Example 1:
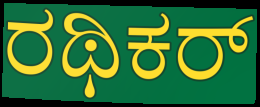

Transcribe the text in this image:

ರಥಿಕರ್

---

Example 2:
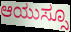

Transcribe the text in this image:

ಆಯುಸ್ಸೂ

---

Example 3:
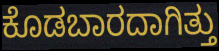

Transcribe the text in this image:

ಕೊಡಬಾರದಾಗಿತ್ತು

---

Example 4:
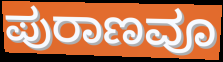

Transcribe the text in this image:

ಪುರಾಣವೂ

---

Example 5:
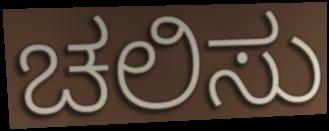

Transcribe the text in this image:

ಚಲಿಸು